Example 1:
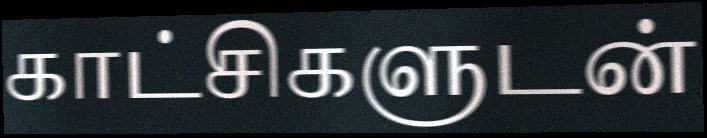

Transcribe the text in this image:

காட்சிகளுடன்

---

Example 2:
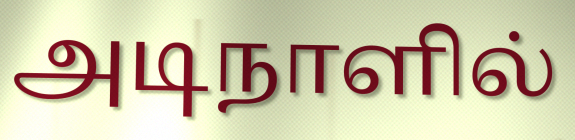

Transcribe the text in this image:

அடிநாளில்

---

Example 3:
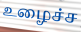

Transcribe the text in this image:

உழைச்ச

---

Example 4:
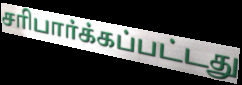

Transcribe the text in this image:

சரிபார்க்கப்பட்டது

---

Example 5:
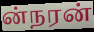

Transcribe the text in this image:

ன்நரன்